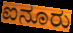
ಐನೂರು